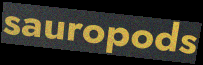
sauropods